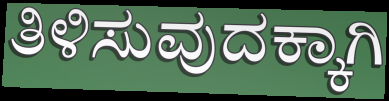
ತಿಳಿಸುವುದಕ್ಕಾಗಿ